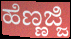
ಹೆಣ್ಣಜ್ಜಿ